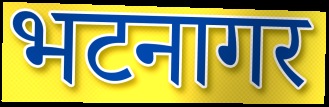
भटनागर